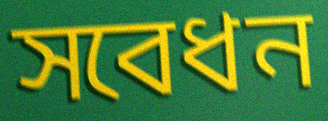
সবেধন